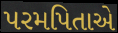
પરમપિતાએ